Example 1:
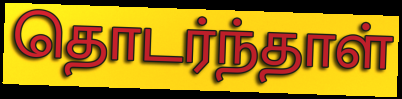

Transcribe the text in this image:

தொடர்ந்தாள்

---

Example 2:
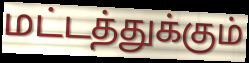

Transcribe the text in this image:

மட்டத்துக்கும்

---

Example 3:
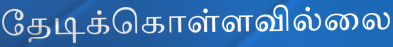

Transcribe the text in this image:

தேடிக்கொள்ளவில்லை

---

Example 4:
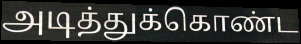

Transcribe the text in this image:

அடித்துக்கொண்ட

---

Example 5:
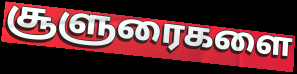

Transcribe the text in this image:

சூளுரைகளை